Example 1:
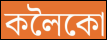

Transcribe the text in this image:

কলৈকো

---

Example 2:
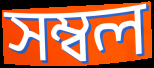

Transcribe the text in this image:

সম্বল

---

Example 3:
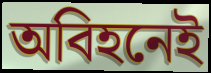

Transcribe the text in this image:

অবিহনেই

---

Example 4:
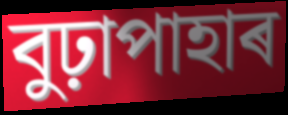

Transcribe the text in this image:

বুঢ়াপাহাৰ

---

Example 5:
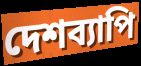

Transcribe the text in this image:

দেশব্যাপি